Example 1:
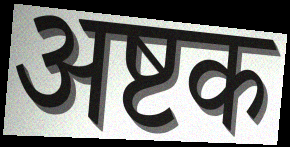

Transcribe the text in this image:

अष्टक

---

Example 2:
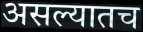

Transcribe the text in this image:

असल्यातच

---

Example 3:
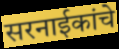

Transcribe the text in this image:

सरनाईकांचे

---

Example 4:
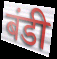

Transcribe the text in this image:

बंडी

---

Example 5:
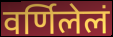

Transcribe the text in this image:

वर्णिलेलं